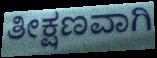
ತೀಕ್ಷಣವಾಗಿ